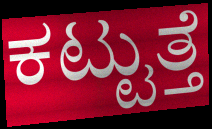
ಕಟ್ಟುತ್ತೆ